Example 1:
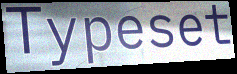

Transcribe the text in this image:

Typeset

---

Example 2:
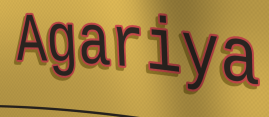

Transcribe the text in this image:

Agariya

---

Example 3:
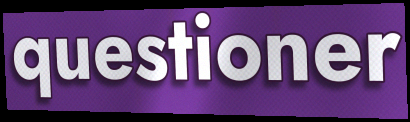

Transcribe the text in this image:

questioner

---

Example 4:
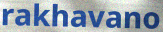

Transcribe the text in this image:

rakhavano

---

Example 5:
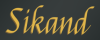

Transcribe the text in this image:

Sikand